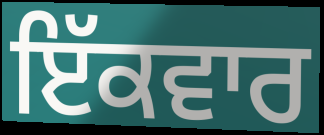
ਇੱਕਵਾਰ